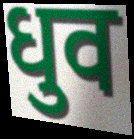
धुव